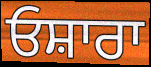
ਓਸ਼ਾਰਾ